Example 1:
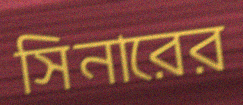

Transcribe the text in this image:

সিনারের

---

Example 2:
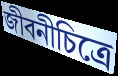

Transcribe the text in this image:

জীবনীচিত্রে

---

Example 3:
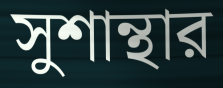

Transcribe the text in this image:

সুশান্থার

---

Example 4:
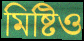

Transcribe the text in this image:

মিষ্টিও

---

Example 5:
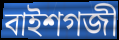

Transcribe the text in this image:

বাইশগজী